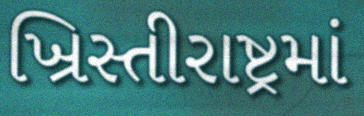
ખ્રિસ્તીરાષ્ટ્રમાં